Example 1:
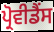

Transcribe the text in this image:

ਪ੍ਰੋਵੀਡੈਂਸ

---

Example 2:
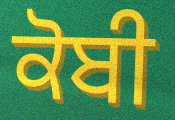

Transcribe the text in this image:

ਕੋਬੀ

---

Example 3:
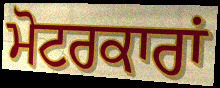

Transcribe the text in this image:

ਮੋਟਰਕਾਰਾਂ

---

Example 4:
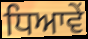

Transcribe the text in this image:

ਧਿਆਵੇਂ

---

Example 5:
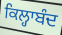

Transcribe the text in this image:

ਕਿਲ੍ਹਾਬੰਦ